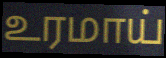
உரமாய்